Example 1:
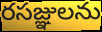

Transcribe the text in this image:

రసజ్ఞులను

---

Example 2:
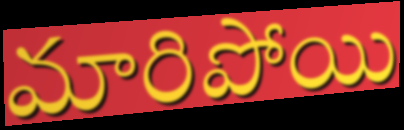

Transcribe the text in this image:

మారిపోయి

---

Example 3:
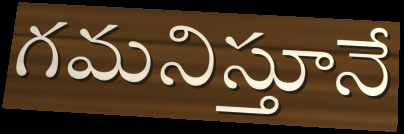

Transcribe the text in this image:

గమనిస్తూనే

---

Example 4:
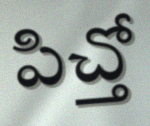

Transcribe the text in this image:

పిచ్తో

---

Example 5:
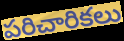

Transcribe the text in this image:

పరిచారికలు